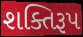
શક્તિરૂપ